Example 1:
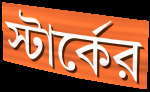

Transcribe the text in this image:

স্টার্কের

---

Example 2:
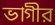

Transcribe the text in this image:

ভাগীর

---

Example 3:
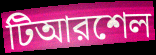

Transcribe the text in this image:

টিআরশেল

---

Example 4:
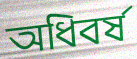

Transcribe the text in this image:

অধিবর্ষ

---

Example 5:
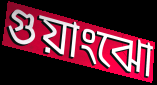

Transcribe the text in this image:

গুয়াংঝো